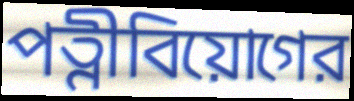
পত্নীবিয়োগের